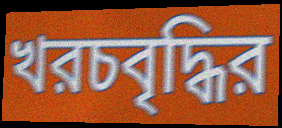
খরচবৃদ্ধির